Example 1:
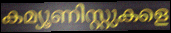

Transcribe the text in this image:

കമ്യൂണിസ്റ്റുകളെ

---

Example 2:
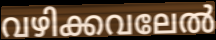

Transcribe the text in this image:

വഴിക്കവലേൽ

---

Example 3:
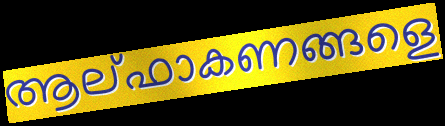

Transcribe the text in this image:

ആല്ഫാകണങ്ങളെ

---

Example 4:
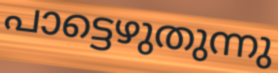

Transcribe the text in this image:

പാട്ടെഴുതുന്നു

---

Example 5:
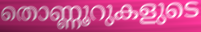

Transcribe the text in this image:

തൊണ്ണൂറുകളുടെ